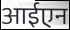
आईएन